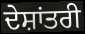
ਦੇਸ਼ਾਂਤਰੀ